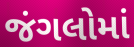
જંગલોમાં